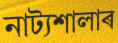
নাট্যশালাৰ